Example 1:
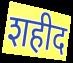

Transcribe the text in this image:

शहीद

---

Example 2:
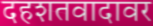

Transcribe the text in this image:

दहशतवादावर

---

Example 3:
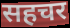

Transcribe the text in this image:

सहचर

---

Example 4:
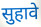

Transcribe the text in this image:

सुहावे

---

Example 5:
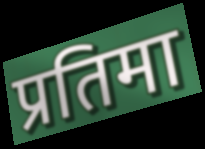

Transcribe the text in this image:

प्रतिमा